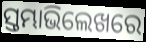
ସ୍ତମ୍ଭାଭିଲେଖରେ